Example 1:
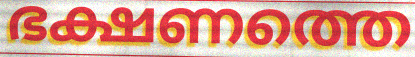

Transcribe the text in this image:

ഭക്ഷണത്തെ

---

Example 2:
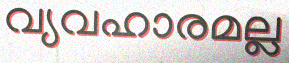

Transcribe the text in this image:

വ്യവഹാരമല്ല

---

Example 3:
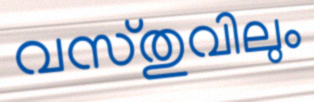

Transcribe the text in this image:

വസ്തുവിലും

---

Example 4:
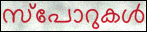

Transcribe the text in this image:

സ്പോറുകൾ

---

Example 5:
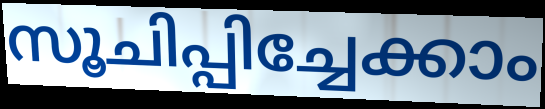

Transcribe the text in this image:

സൂചിപ്പിച്ചേക്കാം